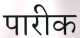
पारीक